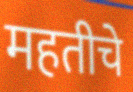
महतीचे